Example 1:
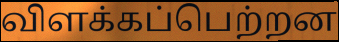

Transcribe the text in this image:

விளக்கப்பெற்றன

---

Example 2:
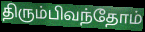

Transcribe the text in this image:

திரும்பிவந்தோம்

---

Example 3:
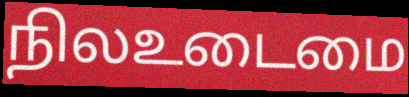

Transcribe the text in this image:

நிலஉடைமை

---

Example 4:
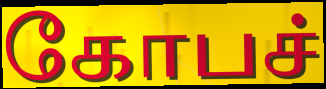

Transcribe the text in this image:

கோபச்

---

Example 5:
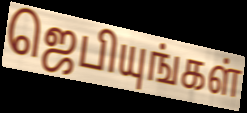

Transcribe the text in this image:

ஜெபியுங்கள்